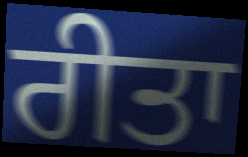
ਰੀਤਾ